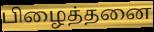
பிழைத்தனை